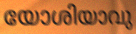
യോശിയാവു